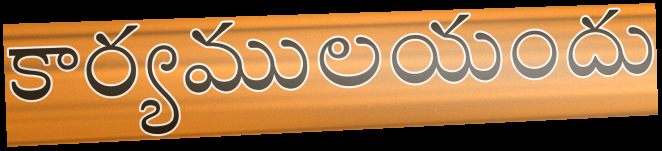
కార్యములయందు